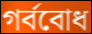
গর্ববোধ